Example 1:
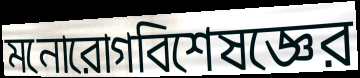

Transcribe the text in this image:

মনোরোগবিশেষজ্ঞের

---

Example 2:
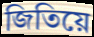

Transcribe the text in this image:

জিতিয়ে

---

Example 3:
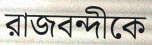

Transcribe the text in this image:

রাজবন্দীকে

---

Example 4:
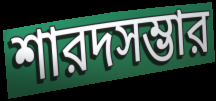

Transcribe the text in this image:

শারদসম্ভার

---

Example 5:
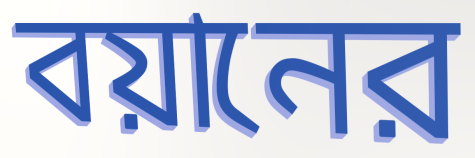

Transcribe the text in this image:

বয়ানের